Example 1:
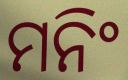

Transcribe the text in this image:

ମନିଂ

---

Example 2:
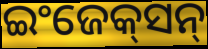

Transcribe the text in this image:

ଇଂଜେକ୍‌ସନ୍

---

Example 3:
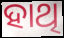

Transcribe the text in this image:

ହାଥି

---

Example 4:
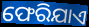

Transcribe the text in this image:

ଫେରିଯାଏ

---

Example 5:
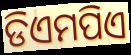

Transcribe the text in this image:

ଡିଏମପିଏ